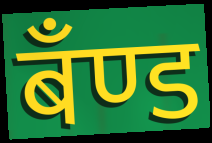
बँण्ड